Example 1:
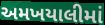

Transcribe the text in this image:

અમખયાલીમાં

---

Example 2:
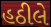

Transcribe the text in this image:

હઠીલે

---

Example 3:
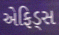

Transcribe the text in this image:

એફિડ્સ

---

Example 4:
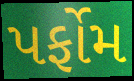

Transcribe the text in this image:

પર્ફોમ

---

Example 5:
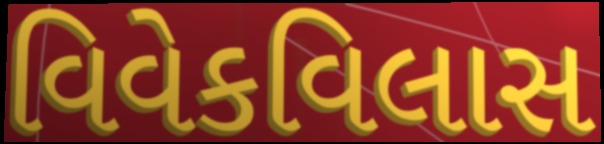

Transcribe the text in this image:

વિવેકવિલાસ